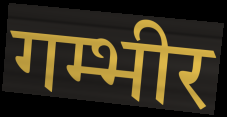
गम्भीर